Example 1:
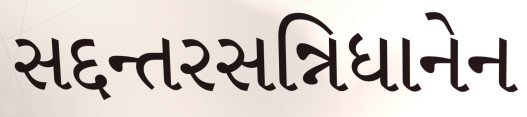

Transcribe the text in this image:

સદ્દન્તરસન્નિધાનેન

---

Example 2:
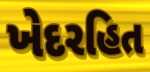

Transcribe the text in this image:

ખેદરહિત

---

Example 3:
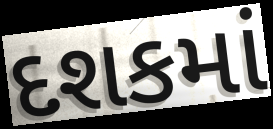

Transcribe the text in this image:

દશકમાં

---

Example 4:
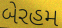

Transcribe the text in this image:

બેરહમ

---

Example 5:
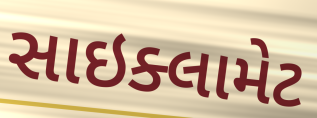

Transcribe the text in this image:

સાઇક્લામેટ